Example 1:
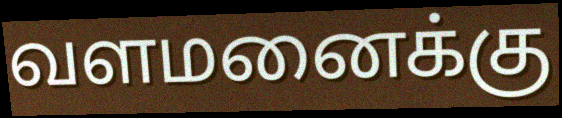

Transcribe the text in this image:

வளமனைக்கு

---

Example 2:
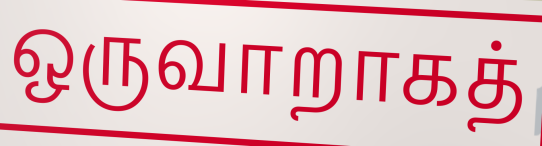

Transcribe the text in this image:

ஒருவாறாகத்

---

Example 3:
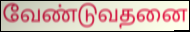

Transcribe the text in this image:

வேண்டுவதனை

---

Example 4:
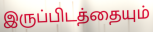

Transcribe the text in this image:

இருப்பிடத்தையும்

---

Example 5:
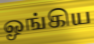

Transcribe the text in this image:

ஓங்கிய